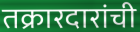
तक्रारदारांची